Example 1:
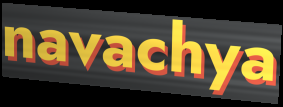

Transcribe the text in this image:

navachya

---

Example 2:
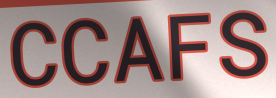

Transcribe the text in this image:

CCAFS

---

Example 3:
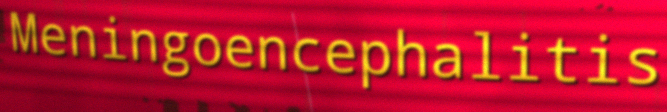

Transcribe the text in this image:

Meningoencephalitis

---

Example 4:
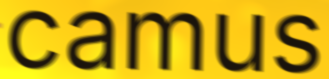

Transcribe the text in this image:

camus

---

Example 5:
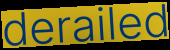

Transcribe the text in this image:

derailed